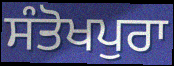
ਸੰਤੋਖਪੁਰਾ